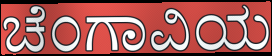
ಚೆಂಗಾವಿಯ